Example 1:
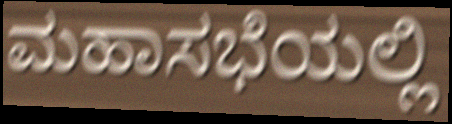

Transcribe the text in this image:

ಮಹಾಸಭೆಯಲ್ಲಿ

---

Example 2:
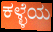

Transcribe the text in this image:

ಕಳ್ಳೆಯ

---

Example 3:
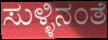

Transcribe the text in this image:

ಸುಳ್ಳಿನಂತೆ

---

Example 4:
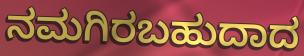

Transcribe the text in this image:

ನಮಗಿರಬಹುದಾದ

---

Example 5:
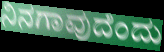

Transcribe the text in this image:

ನಿನಗಾವುದೆಂದು